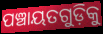
ପଞ୍ଚାୟତଗୁଡ଼ିକୁ